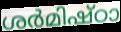
ശർമിഷ്ഠാ